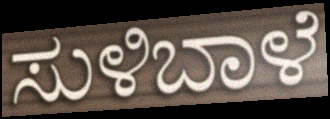
ಸುಳಿಬಾಳೆ